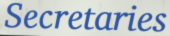
Secretaries